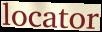
locator